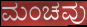
ಮಂಚವು